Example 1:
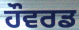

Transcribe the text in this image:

ਹੌਵਰਡ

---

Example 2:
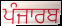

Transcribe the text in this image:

ਪੰਜਾਰਬ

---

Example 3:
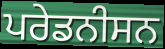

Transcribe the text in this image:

ਪਰੇਡਨੀਸਨ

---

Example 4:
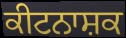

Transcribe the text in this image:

ਕੀਟਨਾਸ਼ਕ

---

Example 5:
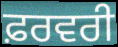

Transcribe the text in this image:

ਫ਼ਰਵਰੀ